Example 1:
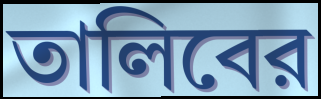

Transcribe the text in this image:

তালিবের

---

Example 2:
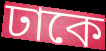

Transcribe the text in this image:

ঢাকে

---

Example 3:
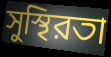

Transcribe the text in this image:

সুস্থিরতা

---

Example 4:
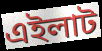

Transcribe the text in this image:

এইলাট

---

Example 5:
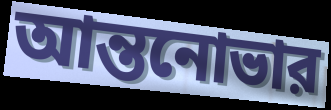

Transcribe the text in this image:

আন্তনোভার